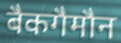
बैकगैमौन